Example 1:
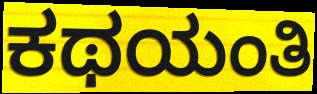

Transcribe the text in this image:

ಕಥಯಂತಿ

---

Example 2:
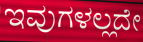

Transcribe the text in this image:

ಇವುಗಳಲ್ಲದೇ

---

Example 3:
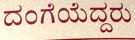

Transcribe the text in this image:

ದಂಗೆಯೆದ್ದರು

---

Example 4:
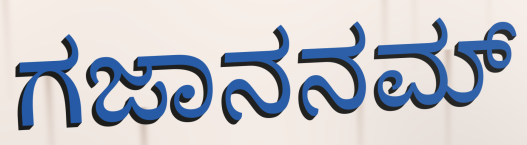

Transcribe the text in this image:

ಗಜಾನನಮ್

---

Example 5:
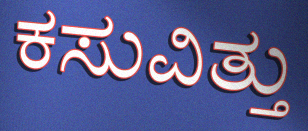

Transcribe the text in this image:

ಕಸುವಿತ್ತು